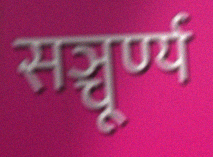
सञ्चूर्ण्य